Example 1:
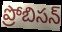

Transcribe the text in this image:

ప్రోబిసన్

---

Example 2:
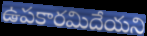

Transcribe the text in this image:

ఉపకారమిదేయని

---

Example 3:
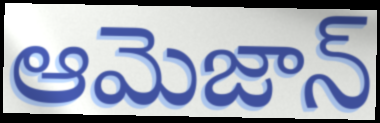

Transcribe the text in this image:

ఆమెజాన్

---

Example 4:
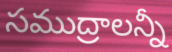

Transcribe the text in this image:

సముద్రాలన్నీ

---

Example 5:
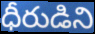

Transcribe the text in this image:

ధీరుడిని